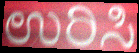
ಉರಿಸಿ